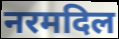
नरमदिल